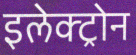
इलेक्ट्रोन